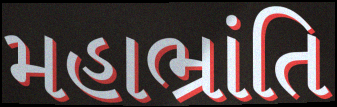
મહાભ્રાંતિ